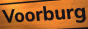
Voorburg